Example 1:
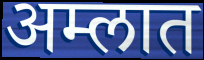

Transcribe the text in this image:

अम्लात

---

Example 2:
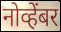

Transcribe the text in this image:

नोव्हेंबर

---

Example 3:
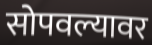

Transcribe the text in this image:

सोपवल्यावर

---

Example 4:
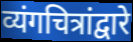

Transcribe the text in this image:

व्यंगचित्रांद्वारे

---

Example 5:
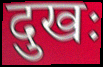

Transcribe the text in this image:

दुखः